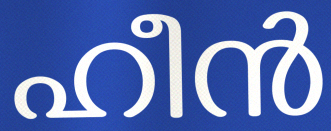
ഹീൻ